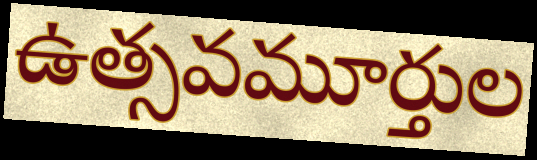
ఉత్సవమూర్తుల